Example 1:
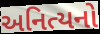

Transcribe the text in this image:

અનિત્યનો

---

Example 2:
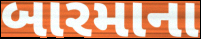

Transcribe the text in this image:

બારમાના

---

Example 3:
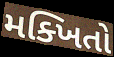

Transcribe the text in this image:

મક્ખિતો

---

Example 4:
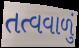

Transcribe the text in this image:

તત્વવાળું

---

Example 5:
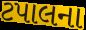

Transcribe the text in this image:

ટપાલના